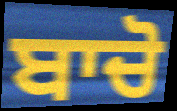
ਬਾਚੋ